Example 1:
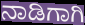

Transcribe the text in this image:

ನಾಡಿಗಾಗಿ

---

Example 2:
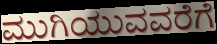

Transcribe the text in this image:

ಮುಗಿಯುವವರೆಗೆ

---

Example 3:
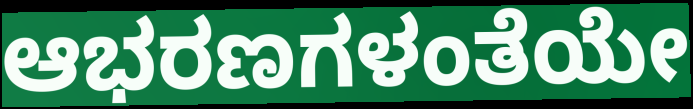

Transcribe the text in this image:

ಆಭರಣಗಳಂತೆಯೇ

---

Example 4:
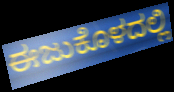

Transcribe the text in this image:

ಈಜುಕೊಳದಲ್ಲಿ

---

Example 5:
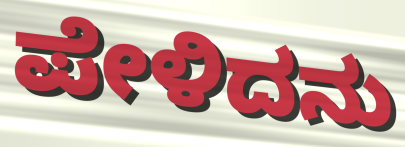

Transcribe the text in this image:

ಪೇಳಿದನು